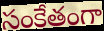
సంకేతంగా